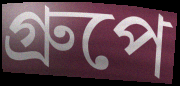
গ্রুপে